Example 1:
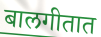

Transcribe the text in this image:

बालगीतात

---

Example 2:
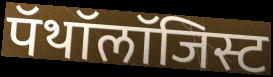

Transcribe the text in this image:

पॅथॉलॉजिस्ट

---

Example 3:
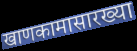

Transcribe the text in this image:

खाणकामासारख्या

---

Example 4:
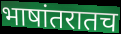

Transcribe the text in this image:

भाषांतरातच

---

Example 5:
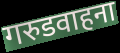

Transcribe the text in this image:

गरुडवाहना